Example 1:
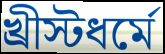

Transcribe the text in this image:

খ্রীস্টধর্মে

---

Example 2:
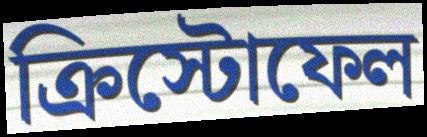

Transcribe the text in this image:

ক্রিস্টোফেল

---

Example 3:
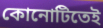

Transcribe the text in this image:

কোনোটিতেই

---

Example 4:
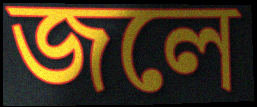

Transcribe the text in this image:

জলে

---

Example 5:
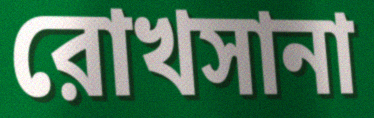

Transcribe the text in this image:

রোখসানা